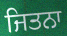
ਜਿਤਨਾ